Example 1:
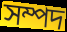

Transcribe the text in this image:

সম্পদ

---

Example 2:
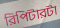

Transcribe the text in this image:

রিপিটারটা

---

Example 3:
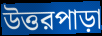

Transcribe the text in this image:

উত্তরপাড়া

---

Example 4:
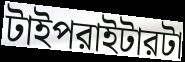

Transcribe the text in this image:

টাইপরাইটারটা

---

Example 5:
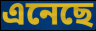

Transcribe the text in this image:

এনেছে